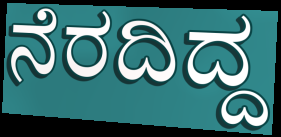
ನೆರದಿದ್ದ